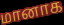
மானாக